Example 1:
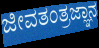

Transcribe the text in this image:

ಜೀವತಂತ್ರಜ್ಞಾನ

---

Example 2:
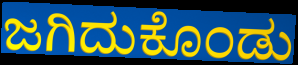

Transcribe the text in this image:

ಜಗಿದುಕೊಂಡು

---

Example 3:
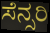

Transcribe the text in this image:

ಸೆನ್ಸರಿ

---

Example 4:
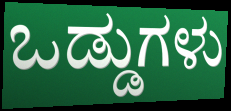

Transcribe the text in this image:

ಒಡ್ಡುಗಳು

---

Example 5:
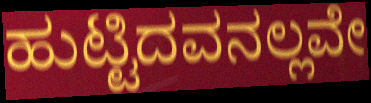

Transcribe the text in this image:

ಹುಟ್ಟಿದವನಲ್ಲವೇ